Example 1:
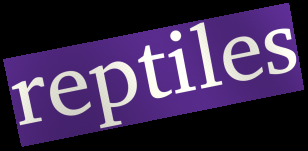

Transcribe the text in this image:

reptiles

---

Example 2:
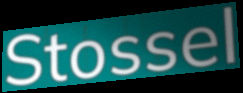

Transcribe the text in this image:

Stossel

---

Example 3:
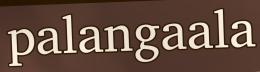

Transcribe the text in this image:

palangaala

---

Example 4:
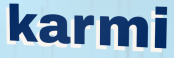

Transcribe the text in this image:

karmi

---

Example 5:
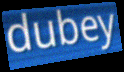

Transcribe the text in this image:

dubey